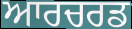
ਆਰਚਰਡ